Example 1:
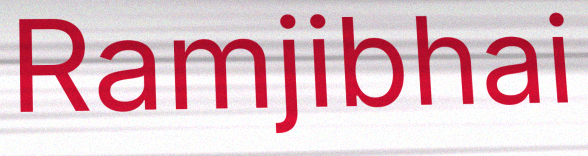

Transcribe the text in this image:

Ramjibhai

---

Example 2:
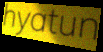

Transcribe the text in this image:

hyatun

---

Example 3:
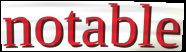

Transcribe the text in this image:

notable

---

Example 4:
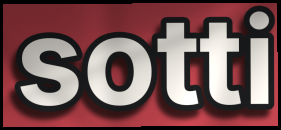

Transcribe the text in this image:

sotti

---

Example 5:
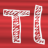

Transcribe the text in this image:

Tl